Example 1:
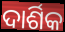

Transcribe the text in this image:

ଦାର୍ଶିକ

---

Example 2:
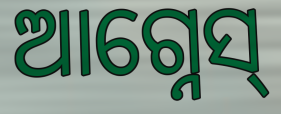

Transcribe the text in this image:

ଆଗ୍ନେସ୍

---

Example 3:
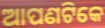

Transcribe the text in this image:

ଆପଣଟିକେ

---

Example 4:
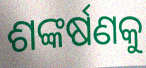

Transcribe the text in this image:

ଶଙ୍କର୍ଷଣକୁ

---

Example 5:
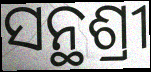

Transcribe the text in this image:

ସନ୍ଥଶ୍ରୀ